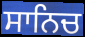
ਸਾਨਿਚ